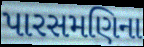
પારસમણિના